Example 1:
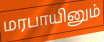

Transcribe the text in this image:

மரபாயினும்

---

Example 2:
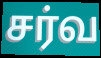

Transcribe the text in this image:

சர்வ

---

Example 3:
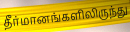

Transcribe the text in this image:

தீர்மானங்களிலிருந்து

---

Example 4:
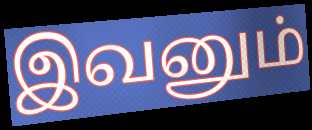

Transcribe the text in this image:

இவனும்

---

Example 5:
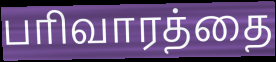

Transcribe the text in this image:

பரிவாரத்தை